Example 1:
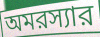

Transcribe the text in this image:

অমরস্যার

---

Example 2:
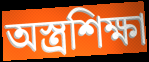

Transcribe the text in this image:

অস্ত্রশিক্ষা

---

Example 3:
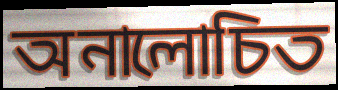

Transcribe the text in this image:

অনালোচিত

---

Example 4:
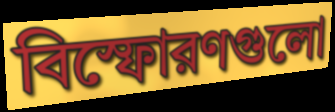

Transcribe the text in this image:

বিস্ফোরণগুলো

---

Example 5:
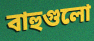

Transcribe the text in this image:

বাহুগুলো